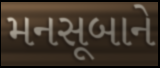
મનસૂબાને